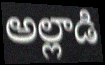
అల్లాడి